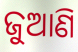
ଜୁଆଣି